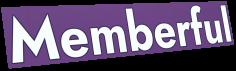
Memberful